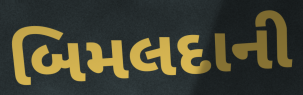
બિમલદાની